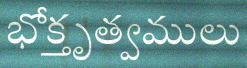
భోక్తృత్వములు